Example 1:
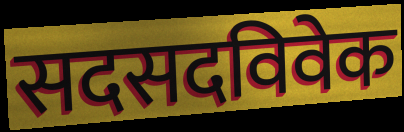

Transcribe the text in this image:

सदसदविवेक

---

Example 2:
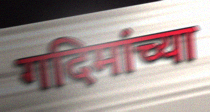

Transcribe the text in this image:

गदिमांच्या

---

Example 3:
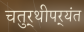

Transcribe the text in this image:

चतुर्थीपर्यंत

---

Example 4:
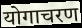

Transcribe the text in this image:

योगाचरण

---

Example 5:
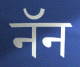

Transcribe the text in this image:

नॅन